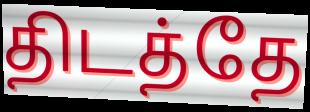
திடத்தே